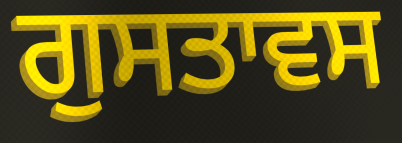
ਗੁਸਤਾਵਸ